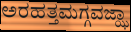
ಅರಹತ್ತಮಗ್ಗವಜ್ಝಾ